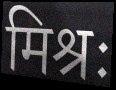
मिश्रः